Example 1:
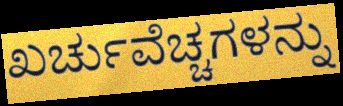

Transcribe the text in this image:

ಖರ್ಚುವೆಚ್ಚಗಳನ್ನು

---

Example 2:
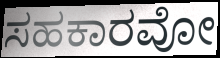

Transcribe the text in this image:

ಸಹಕಾರವೋ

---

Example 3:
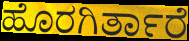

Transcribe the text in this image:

ಹೊರಗಿರ್ತಾರೆ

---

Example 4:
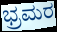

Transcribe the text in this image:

ಭ್ರಮರ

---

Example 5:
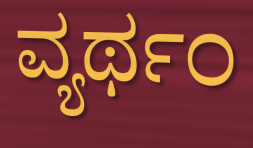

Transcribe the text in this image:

ವ್ಯರ್ಥಂ